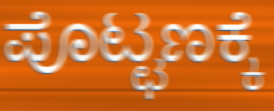
ಪೊಟ್ಟಣಕ್ಕೆ